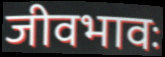
जीवभावः